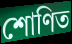
শোণিত